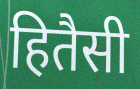
हितैसी